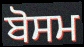
ਬੋਸਮ